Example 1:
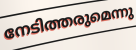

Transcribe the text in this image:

നേടിത്തരുമെന്നു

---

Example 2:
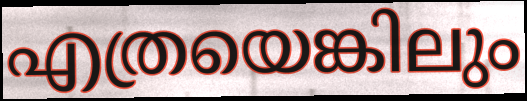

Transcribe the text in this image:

എത്രയെങ്കിലും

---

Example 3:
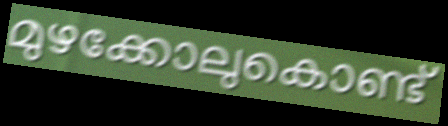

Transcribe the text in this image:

മുഴക്കോലുകൊണ്ട്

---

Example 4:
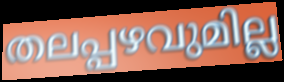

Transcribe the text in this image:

തലപ്പഴവുമില്ല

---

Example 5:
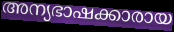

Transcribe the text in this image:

അന്യഭാഷക്കാരായ